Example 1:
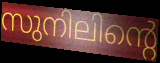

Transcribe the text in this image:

സുനിലിന്റെ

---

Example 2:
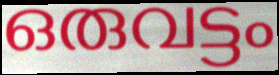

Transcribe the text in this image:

ഒരുവട്ടം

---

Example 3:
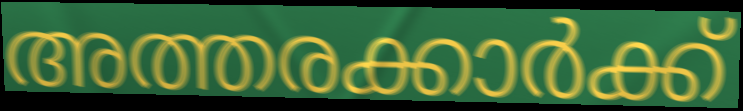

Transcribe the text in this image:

അത്തരക്കാർക്ക്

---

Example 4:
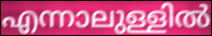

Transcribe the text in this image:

എന്നാലുള്ളിൽ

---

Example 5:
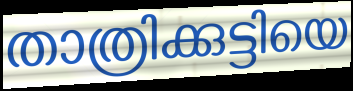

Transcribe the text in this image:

താത്രിക്കുട്ടിയെ